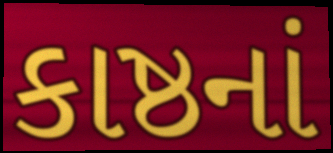
કાષ્ઠનાં